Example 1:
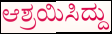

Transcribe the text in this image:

ಆಶ್ರಯಿಸಿದ್ದು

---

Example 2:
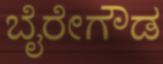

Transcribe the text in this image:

ಬೈರೇಗೌಡ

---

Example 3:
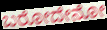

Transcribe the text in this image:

ಬರೋದೇನೋ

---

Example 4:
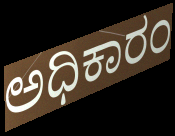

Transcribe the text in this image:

ಅಧಿಕಾರಂ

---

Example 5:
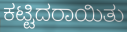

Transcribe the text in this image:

ಕಟ್ಟಿದರಾಯಿತು